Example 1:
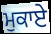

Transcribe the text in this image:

ਮੁਕਾਏ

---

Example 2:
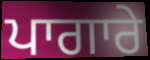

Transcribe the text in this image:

ਪਾਗਾਰੇ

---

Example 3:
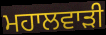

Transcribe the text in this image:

ਮਹਾਲਵਾੜੀ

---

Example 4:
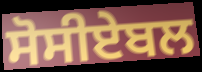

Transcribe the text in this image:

ਸੋਸੀਏਬਲ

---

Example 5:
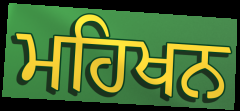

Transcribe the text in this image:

ਮਹਿਖਨ